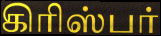
கிரிஸ்பர்